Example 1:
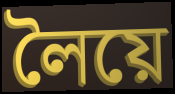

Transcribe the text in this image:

লৈয়ে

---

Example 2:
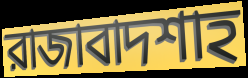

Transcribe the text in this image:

রাজাবাদশাহ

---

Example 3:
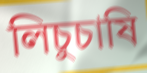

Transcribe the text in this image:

লিচুচাষি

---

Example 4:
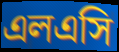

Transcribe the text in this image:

এলএসি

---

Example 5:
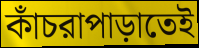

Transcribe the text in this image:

কাঁচরাপাড়াতেই